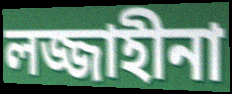
লজ্জাহীনা